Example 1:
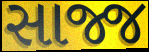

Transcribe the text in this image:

સાજ્જ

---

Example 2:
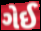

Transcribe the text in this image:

ગેઈ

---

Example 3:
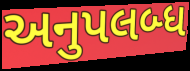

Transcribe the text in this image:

અનુપલબ્ધ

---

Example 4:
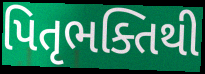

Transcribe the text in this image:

પિતૃભક્તિથી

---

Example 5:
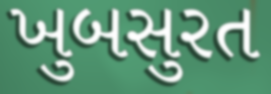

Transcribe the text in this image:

ખુબસુરત